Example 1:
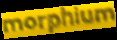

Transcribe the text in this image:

morphium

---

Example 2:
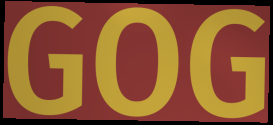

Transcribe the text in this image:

GOG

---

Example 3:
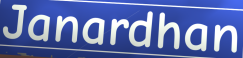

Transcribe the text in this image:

Janardhan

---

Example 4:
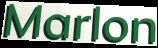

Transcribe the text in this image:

Marlon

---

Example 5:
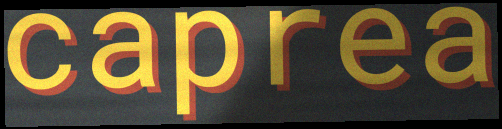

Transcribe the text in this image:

caprea